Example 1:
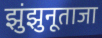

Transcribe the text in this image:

झुंझुनूताजा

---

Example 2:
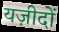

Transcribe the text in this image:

यज़ीदों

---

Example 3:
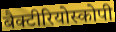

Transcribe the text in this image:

बैक्टीरियोस्कोपी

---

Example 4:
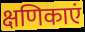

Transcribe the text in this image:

क्षणिकाएं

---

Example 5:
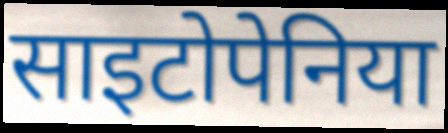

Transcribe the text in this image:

साइटोपेनिया